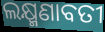
ଲକ୍ଷ୍ମଣାବତୀ